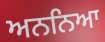
ਅਨਨਿਆ